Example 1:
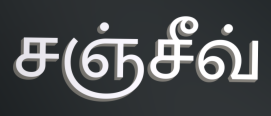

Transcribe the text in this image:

சஞ்சீவ்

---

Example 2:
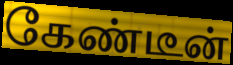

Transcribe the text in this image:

கேண்டீன்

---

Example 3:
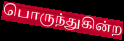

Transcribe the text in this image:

பொருந்துகின்ற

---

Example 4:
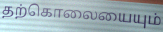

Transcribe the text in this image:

தற்கொலையையும்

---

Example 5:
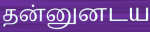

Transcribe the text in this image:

தன்னுனடய